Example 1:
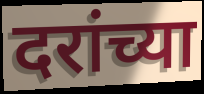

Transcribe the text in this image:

दरांच्या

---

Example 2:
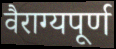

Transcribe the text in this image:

वैराग्यपूर्ण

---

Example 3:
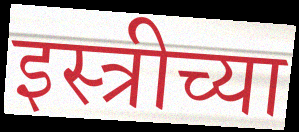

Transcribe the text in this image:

इस्त्रीच्या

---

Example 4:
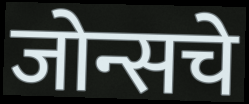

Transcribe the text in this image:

जोन्सचे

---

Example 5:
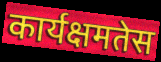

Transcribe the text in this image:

कार्यक्षमतेस